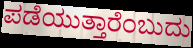
ಪಡೆಯುತ್ತಾರೆಂಬುದು